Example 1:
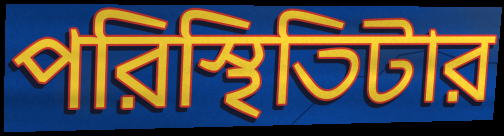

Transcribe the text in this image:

পরিস্থিতিটার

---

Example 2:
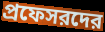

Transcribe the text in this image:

প্রফেসরদের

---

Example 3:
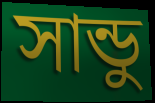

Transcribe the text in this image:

সান্ডু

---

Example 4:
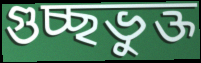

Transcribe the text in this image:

গুচ্ছভুক্ত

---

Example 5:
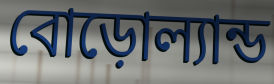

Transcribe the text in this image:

বোড়োল্যান্ড